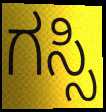
ಗಸ್ಸಿ